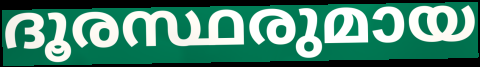
ദൂരസ്ഥരുമായ